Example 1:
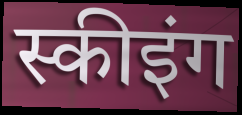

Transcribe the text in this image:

स्कीइंग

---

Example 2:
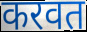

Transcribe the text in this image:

करवत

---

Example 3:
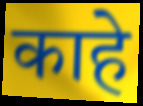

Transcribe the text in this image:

काहे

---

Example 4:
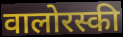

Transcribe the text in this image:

वालोरस्की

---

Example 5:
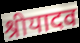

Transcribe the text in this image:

श्रीयादव